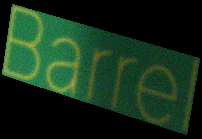
Barrel